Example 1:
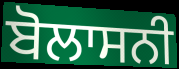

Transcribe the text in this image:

ਬੋਲਾਸਨੀ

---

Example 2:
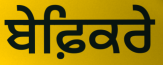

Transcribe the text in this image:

ਬੇਫ਼ਿਕਰੇ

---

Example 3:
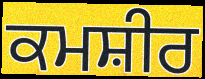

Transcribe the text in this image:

ਕਮਸ਼ੀਰ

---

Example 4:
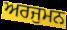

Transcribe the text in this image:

ਅਰਜੁਮਨ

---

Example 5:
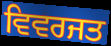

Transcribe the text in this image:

ਵਿਵਰਜਤ